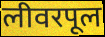
लीवरपूल